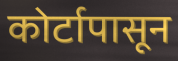
कोर्टापासून